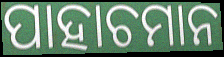
ପାହାଚମାନ